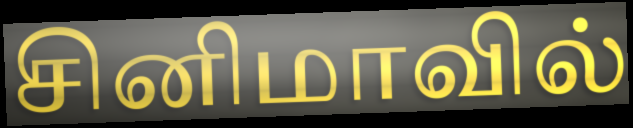
சினிமாவில்